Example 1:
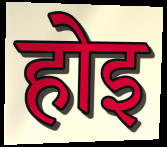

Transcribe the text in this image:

होइ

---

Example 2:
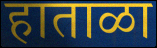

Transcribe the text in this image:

हाताळा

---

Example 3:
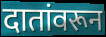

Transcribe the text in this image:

दातांवरून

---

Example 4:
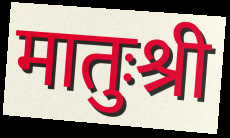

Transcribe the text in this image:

मातुःश्री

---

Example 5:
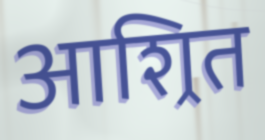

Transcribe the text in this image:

आश्रित